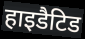
हाइडैटिड